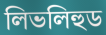
লিভলিহুড